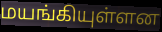
மயங்கியுள்ளன